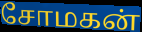
சோமகன்